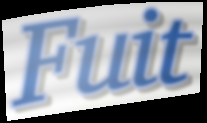
Fuit